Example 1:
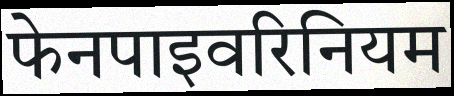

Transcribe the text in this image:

फेनपाइवरिनियम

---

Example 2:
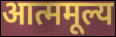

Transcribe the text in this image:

आत्ममूल्य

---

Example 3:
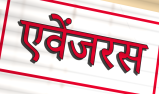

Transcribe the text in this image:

एवेंजरस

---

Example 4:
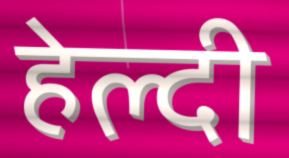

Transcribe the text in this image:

हेल्दी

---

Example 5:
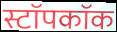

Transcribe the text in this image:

स्टॉपकॉक